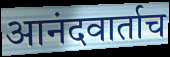
आनंदवार्ताच